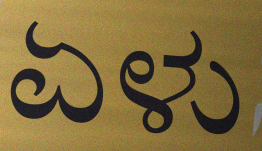
ಏಳು